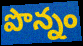
పొన్నం